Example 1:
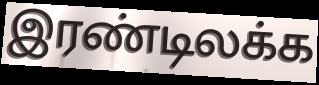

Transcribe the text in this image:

இரண்டிலக்க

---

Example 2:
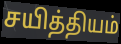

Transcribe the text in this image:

சயித்தியம்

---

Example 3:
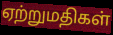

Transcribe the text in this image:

ஏற்றுமதிகள்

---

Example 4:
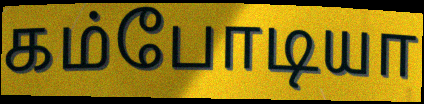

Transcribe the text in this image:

கம்போடியா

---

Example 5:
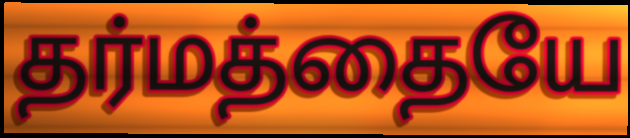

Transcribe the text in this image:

தர்மத்தையே